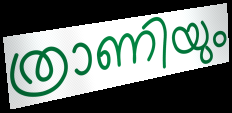
ത്രാണിയും